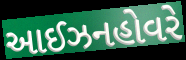
આઈઝનહોવરે